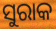
ସୁରାକ